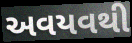
અવયવથી